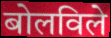
बोलविले